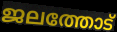
ജലത്തോട്